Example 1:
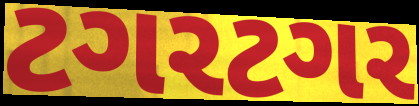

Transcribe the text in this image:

ટગરટગર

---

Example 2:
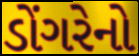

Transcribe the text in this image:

ડોંગરેનો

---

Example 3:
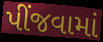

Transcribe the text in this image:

પીંજવામાં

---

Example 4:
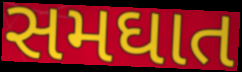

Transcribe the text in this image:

સમઘાત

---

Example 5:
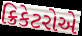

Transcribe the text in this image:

ક્રિકેટરોએ